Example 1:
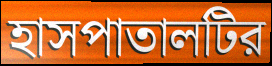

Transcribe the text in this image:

হাসপাতালটির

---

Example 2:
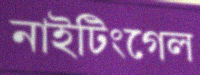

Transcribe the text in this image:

নাইটিংগেল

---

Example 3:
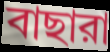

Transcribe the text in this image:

বাছারা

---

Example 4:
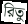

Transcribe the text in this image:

রিতু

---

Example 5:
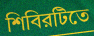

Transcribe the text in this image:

শিবিরটিতে